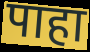
पाहा